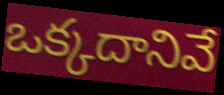
ఒక్కదానివే